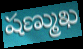
షణ్ముఖ